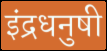
इंद्रधनुषी